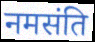
नमसंति